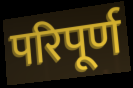
परिपूर्ण